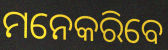
ମନେକରିବେ